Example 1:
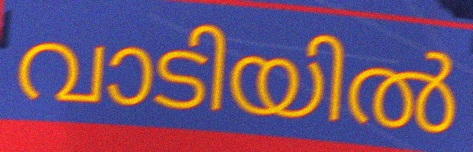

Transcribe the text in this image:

വാടിയിൽ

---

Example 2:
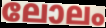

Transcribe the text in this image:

ലോലം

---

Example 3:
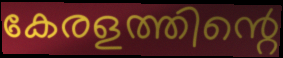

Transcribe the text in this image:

കേരളത്തിന്റെ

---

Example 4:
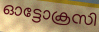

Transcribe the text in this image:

ഓട്ടോക്രസി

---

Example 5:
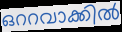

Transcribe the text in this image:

ഒററവാക്കിൽ